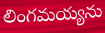
లింగమయ్యను